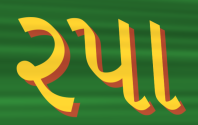
રપા